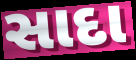
સાદા